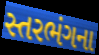
સ્તરભંગના